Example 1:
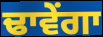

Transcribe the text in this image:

ਢਾਵੇਂਗਾ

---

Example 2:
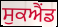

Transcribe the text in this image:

ਸੁਕਐਂਡ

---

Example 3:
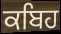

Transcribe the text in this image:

ਕਬਿਹ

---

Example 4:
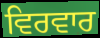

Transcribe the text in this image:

ਵਿਰਵਾਰ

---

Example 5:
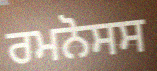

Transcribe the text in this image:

ਰਮਨੋਸਸ